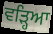
ਵੜ੍ਹਿਆ